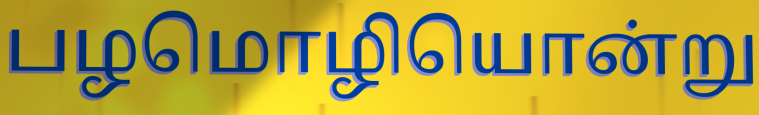
பழமொழியொன்று